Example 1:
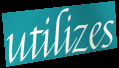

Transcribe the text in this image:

utilizes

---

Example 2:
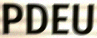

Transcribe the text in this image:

PDEU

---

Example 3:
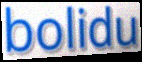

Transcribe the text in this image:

bolidu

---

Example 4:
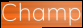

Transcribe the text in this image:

Champ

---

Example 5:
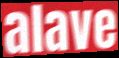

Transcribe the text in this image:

alave